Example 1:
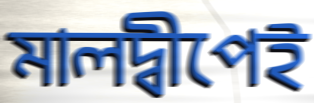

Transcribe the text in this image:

মালদ্বীপেই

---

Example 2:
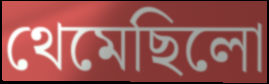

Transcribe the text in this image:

থেমেছিলো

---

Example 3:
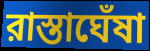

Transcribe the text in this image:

রাস্তাঘেঁষা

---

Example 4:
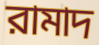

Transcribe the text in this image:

রামাদ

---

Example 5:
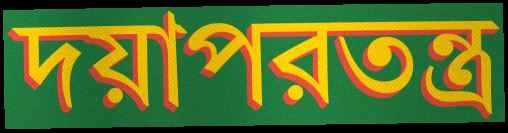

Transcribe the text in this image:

দয়াপরতন্ত্র